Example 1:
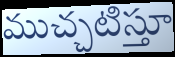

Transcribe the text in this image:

ముచ్చటిస్తూ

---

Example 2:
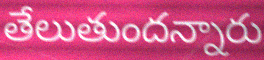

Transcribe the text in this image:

తేలుతుందన్నారు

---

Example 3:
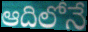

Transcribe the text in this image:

ఆదిలోనే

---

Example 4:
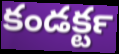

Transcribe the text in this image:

కండక్టర్‍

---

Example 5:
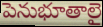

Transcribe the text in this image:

పెనుభూతాలై